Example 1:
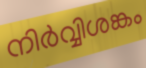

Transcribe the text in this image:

നിർവ്വിശങ്കം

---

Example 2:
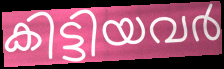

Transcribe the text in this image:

കിട്ടിയവർ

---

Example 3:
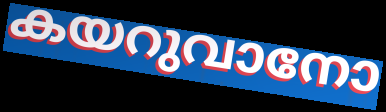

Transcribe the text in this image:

കയറുവാനോ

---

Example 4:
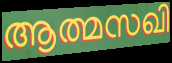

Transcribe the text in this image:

ആത്മസഖി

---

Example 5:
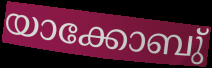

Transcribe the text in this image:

യാക്കോബു്